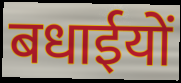
बधाईयों